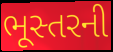
ભૂસ્તરની